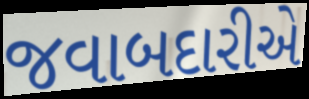
જવાબદારીએ